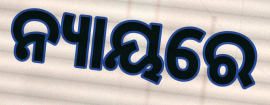
ନ୍ୟାୟରେ